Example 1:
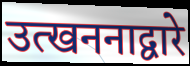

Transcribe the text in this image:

उत्खननाद्वारे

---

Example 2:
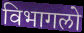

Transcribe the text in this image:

विभागलो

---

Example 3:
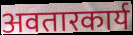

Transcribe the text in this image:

अवतारकार्य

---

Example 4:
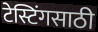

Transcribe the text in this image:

टेस्टिंगसाठी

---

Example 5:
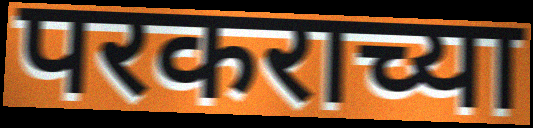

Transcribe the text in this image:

परकराच्या